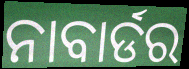
ନାବାର୍ଡର